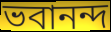
ভবানন্দ